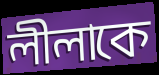
লীলাকে